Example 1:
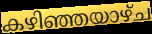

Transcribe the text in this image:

കഴിഞ്ഞയാഴ്ച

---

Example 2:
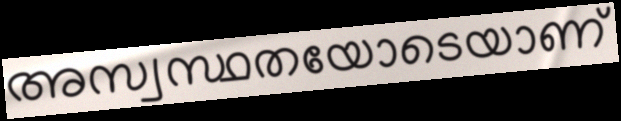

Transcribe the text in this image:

അസ്വസ്ഥതയോടെയാണ്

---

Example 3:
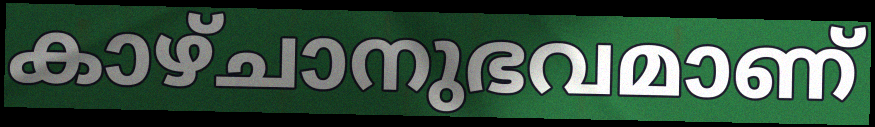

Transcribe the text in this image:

കാഴ്ചാനുഭവമാണ്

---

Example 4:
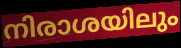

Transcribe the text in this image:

നിരാശയിലും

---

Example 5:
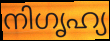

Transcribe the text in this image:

നിഗൃഹ്യ